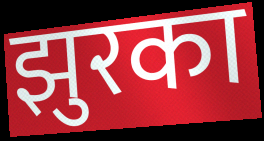
झुरका